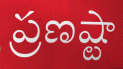
ప్రణష్టా